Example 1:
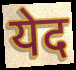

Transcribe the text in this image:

येद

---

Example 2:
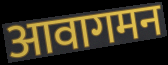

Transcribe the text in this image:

आवागमन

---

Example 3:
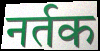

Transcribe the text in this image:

नर्तक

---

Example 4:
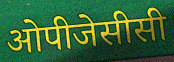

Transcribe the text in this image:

ओपीजेसीसी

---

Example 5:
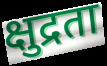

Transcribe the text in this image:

क्षुद्रता